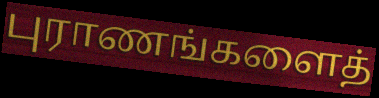
புராணங்களைத்